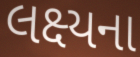
લક્ષ્યના